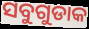
ସବୁଗୁଡାକ